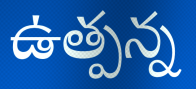
ఉత్పన్న